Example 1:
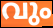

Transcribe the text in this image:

വും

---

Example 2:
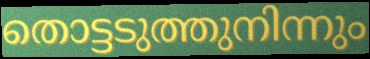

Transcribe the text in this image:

തൊട്ടടുത്തുനിന്നും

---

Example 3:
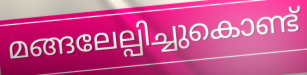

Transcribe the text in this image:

മങ്ങലേല്പിച്ചുകൊണ്ട്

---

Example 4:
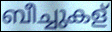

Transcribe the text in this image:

ബീച്ചുകള്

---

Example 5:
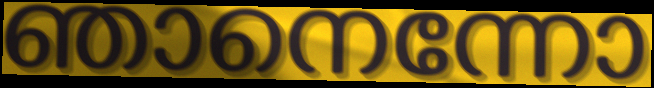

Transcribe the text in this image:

ഞാനെന്നോ